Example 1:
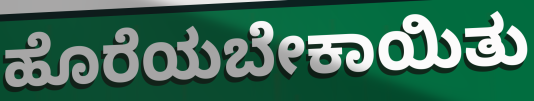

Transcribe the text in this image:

ಹೊರೆಯಬೇಕಾಯಿತು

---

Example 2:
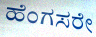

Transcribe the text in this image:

ಹೆಂಗಸರೇ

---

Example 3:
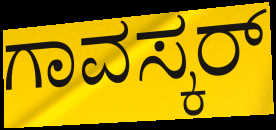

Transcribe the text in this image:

ಗಾವಸ್ಕರ್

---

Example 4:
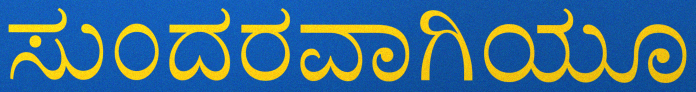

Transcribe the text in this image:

ಸುಂದರವಾಗಿಯೂ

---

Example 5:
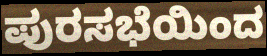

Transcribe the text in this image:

ಪುರಸಭೆಯಿಂದ